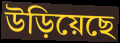
উড়িয়েছে